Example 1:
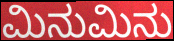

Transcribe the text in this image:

ಮಿನುಮಿನು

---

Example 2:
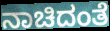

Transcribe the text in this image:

ನಾಚಿದಂತೆ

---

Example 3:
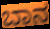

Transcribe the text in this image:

ಬಾನ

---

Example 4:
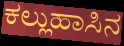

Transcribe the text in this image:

ಕಲ್ಲುಹಾಸಿನ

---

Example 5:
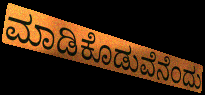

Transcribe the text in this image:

ಮಾಡಿಕೊಡುವೆನೆಂದು